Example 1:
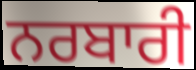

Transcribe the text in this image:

ਨਰਬਾਰੀ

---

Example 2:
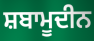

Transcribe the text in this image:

ਸ਼ਬਾਮੂਦੀਨ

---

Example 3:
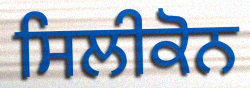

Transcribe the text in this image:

ਸਿਲੀਕੋਨ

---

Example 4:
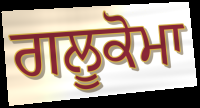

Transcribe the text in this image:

ਗਲੂਕੋਮਾ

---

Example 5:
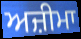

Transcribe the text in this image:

ਅਜ਼ੀਮਾ